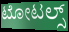
ಟೋಟಲ್ಸ್